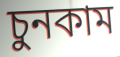
চুনকাম